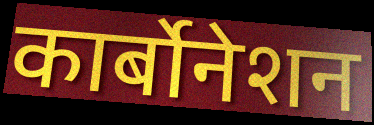
कार्बोनेशन